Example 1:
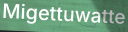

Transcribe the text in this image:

Migettuwatte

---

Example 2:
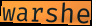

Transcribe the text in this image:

warshe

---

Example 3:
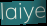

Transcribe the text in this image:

laiye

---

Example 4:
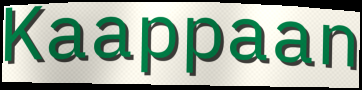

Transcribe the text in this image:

Kaappaan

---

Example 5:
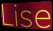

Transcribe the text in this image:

Lise